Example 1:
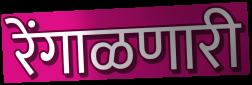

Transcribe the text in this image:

रेंगाळणारी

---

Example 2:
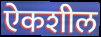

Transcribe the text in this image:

ऐकशील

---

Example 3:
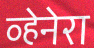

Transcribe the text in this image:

व्हेनेरा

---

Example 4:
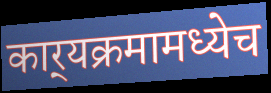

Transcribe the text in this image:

कार्यक्रमामध्येच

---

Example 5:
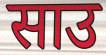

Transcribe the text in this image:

साउ